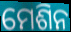
ମେଶିନ